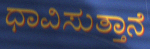
ಧಾವಿಸುತ್ತಾನೆ